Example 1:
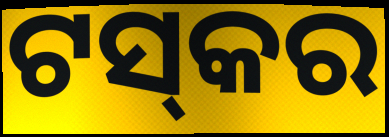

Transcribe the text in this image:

ଟସ୍‍କର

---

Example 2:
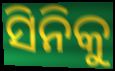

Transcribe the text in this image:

ସିନିକୁ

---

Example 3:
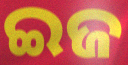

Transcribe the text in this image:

ଇଜ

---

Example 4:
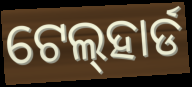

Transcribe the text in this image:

ଟେଲ୍‍ହାର୍ଡ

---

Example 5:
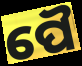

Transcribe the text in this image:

ପୈ